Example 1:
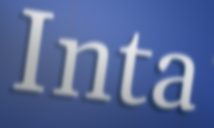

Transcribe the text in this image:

Inta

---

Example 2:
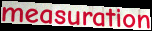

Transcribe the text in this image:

measuration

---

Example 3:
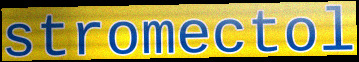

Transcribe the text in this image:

stromectol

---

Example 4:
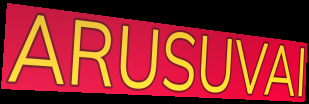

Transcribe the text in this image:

ARUSUVAI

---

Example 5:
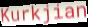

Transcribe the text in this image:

Kurkjian